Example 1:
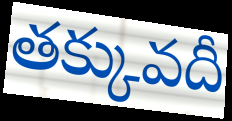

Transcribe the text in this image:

తక్కువదీ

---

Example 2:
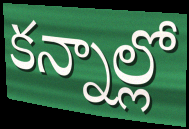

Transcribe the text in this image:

కన్నాల్లో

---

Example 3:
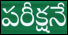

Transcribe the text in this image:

పరీక్షనే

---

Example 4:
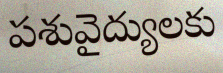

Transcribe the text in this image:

పశువైద్యులకు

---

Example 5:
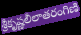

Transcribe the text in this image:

శ్రీకృష్ణలీలాతరంగిణి